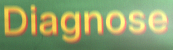
Diagnose